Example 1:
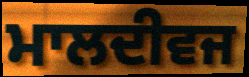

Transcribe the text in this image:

ਮਾਲਦੀਵਜ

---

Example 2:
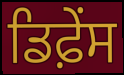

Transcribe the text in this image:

ਡਿਫ਼ੇੰਸ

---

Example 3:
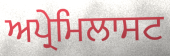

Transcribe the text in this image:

ਅਪ੍ਰੇਮਿਲਾਸਟ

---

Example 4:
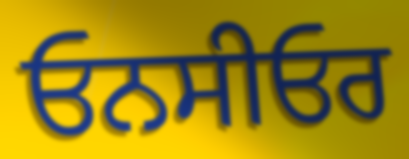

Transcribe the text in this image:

ਓਨਸੀਓਰ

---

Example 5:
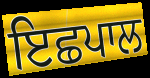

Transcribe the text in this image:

ਇਛਪਾਲ